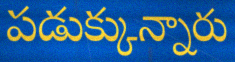
పడుక్కున్నారు